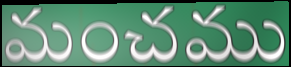
మంచము